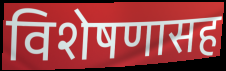
विशेषणासह